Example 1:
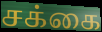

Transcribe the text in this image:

சக்கை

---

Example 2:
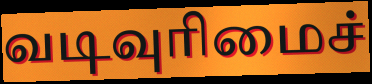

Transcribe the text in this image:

வடிவுரிமைச்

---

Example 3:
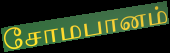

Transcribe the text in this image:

சோமபானம்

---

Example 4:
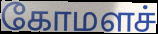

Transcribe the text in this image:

கோமளச்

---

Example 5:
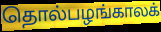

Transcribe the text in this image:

தொல்பழங்காலக்